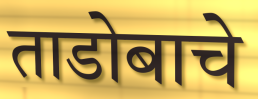
ताडोबाचे